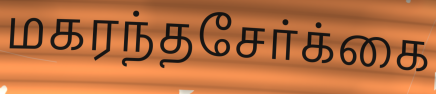
மகரந்தசேர்க்கை